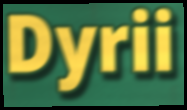
Dyrii